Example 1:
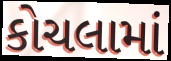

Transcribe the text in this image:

કોચલામાં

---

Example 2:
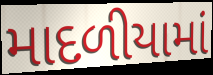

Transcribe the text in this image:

માદળીયામાં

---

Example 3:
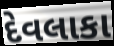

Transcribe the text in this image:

દેવલાકા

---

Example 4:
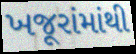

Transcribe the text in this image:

ખજૂરાંમાંથી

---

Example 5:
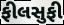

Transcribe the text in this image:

ફીલસુફી